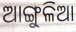
ଆଙ୍ଗୁଳିଆ